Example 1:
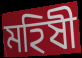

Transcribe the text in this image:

মহিষী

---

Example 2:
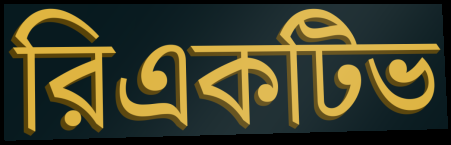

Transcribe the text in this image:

রিএকটিভ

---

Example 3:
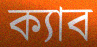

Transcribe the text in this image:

ক্যাব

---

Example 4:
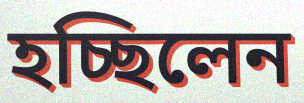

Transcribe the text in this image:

হচ্ছিলেন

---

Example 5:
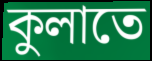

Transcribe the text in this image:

কুলাতে